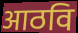
आठवि